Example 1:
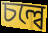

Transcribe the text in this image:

চল্বে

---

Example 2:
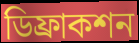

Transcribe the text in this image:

ডিফ্রাকশন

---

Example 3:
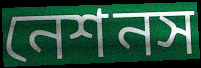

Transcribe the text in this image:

নেশনস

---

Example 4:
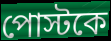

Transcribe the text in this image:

পোস্টকে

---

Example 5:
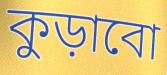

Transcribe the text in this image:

কুড়াবো